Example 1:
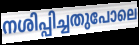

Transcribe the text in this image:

നശിപ്പിച്ചതുപോലെ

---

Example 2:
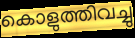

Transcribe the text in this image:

കൊളുത്തിവച്ചു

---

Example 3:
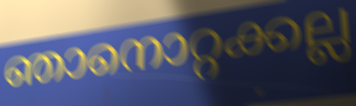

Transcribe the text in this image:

ഞാനൊറ്റക്കല്ല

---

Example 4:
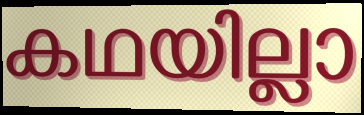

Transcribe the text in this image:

കഥയില്ലാ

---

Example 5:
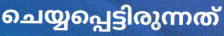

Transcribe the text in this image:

ചെയ്യപ്പെട്ടിരുന്നത്